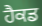
ਹੈਕਡ